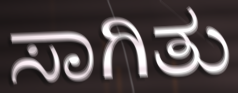
ಸಾಗಿತು